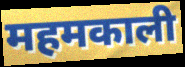
महमकाली